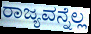
ರಾಜ್ಯವನ್ನೆಲ್ಲ